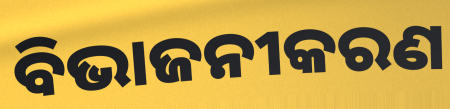
ବିଭାଜନୀକରଣ